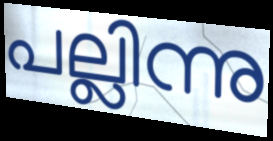
പല്ലിന്നു